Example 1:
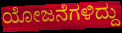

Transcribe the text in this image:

ಯೋಜನೆಗಳಿದ್ದು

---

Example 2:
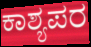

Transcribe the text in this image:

ಕಾಶ್ಯಪರ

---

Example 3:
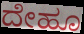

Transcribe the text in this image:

ದೇಹೂ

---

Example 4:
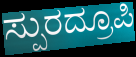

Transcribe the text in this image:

ಸ್ಪುರದ್ರೂಪಿ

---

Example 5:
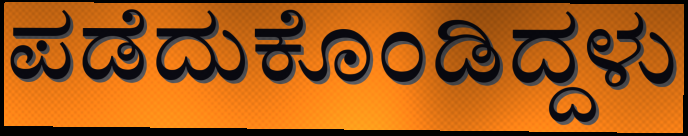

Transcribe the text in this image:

ಪಡೆದುಕೊಂಡಿದ್ದಳು